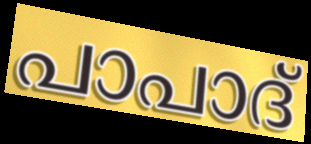
പാപാദ്